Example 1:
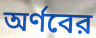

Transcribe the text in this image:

অর্ণবের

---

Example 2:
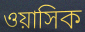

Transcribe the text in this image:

ওয়াসিক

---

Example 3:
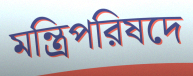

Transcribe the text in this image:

মন্ত্রিপরিষদে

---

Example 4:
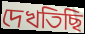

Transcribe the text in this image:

দেখতিছি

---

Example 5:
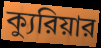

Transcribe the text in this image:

ক্যুরিয়ার